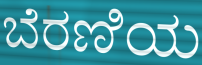
ಬೆರಣಿಯ